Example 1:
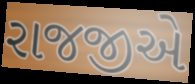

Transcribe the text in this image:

રાજજીએ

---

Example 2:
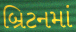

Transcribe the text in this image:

બ્રિટનમાં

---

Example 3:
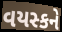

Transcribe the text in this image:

વયસ્કને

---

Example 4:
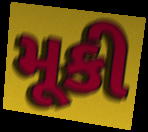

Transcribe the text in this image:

મૂકી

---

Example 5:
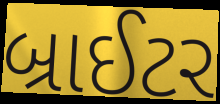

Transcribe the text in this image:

બ્રાઈટર